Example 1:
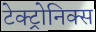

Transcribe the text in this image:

टेक्ट्रोनिक्स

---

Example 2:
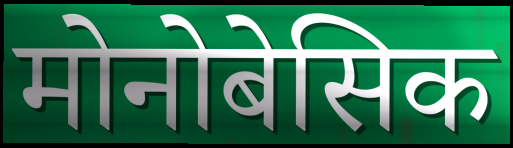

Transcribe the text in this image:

मोनोबेसिक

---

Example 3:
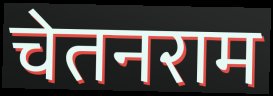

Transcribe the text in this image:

चेतनराम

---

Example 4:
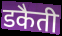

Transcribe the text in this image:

डकैती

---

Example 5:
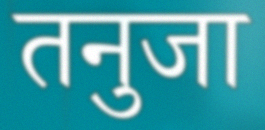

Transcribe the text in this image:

तनुजा